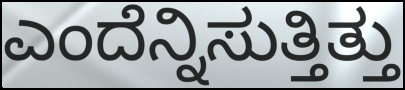
ಎಂದೆನ್ನಿಸುತ್ತಿತ್ತು